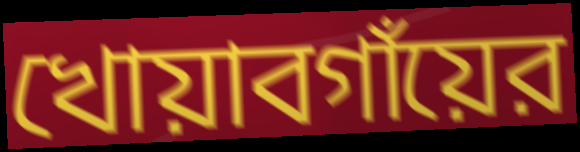
খোয়াবগাঁয়ের